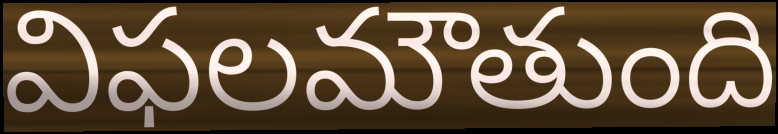
విఫలమౌతుంది